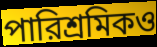
পারিশ্রমিকও